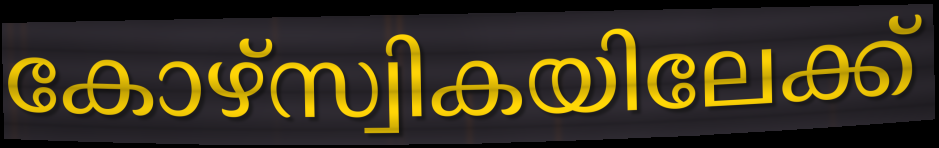
കോഴ്സ്വികയിലേക്ക്